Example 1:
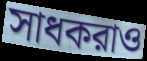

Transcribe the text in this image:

সাধকরাও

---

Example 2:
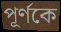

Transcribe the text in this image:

পূর্ণকে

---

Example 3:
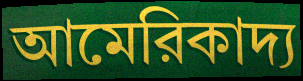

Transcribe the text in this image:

আমেরিকাদ্য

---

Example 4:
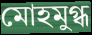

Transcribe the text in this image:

মোহমুগ্ধ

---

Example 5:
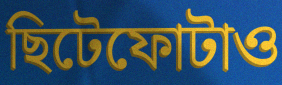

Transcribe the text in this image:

ছিটেফোটাও